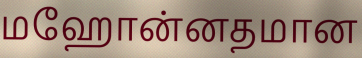
மஹோன்னதமான